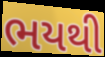
ભયથી